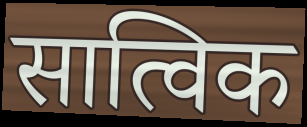
सात्विक